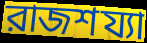
রাজশয্যা